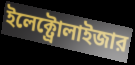
ইলেক্ট্রোলাইজার